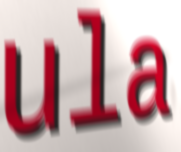
ula